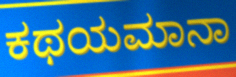
ಕಥಯಮಾನಾ